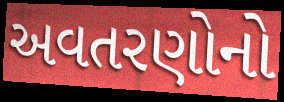
અવતરણોનો